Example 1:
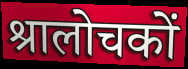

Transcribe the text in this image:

श्रालोचकों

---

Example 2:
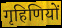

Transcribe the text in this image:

गृहिणियों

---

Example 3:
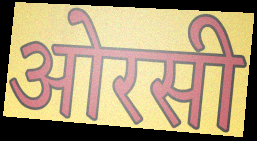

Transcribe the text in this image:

ओरसी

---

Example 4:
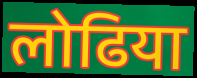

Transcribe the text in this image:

लोढिया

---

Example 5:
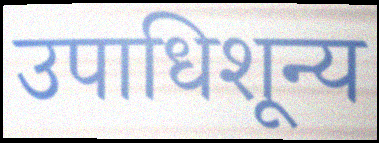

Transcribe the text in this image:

उपाधिशून्य